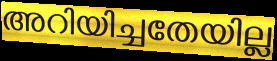
അറിയിച്ചതേയില്ല